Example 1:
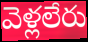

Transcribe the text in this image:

వెళ్లలేరు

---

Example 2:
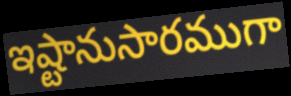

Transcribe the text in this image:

ఇష్టానుసారముగా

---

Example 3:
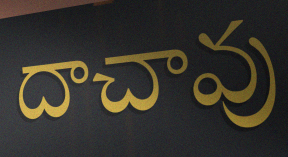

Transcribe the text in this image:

దాచావు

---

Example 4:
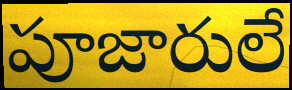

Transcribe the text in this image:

పూజారులే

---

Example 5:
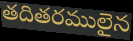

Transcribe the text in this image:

తదితరములైన